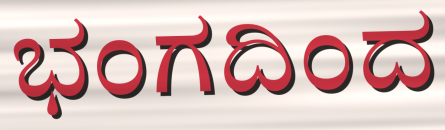
ಭಂಗದಿಂದ